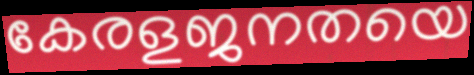
കേരളജനതയെ